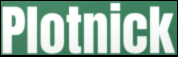
Plotnick